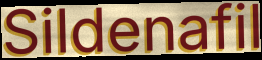
Sildenafil